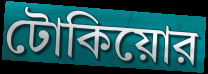
টোকিয়োর